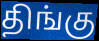
திங்கு